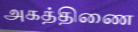
அகத்திணை